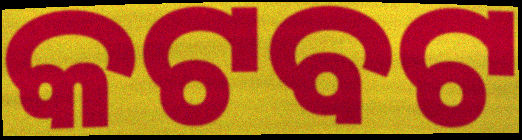
କଟବଟ